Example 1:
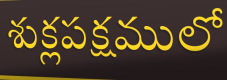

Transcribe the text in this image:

శుక్లపక్షములో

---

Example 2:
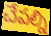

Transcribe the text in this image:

చేపల్ని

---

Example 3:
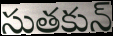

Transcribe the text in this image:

సుతకున్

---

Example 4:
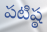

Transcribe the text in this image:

పటిష్ఠ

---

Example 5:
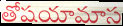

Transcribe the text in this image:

తోషయామాస